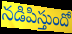
నడిపిస్తుందో